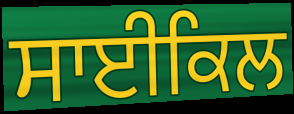
ਸਾਈਕਿਲ